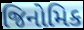
જિનોમિક